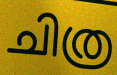
ചിത്ര